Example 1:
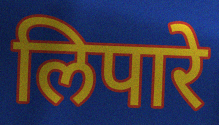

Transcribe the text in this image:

लिपारे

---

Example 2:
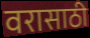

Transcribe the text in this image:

वरासाठी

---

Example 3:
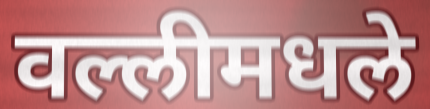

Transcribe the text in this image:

वल्लीमधले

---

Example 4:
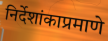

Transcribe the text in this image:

निर्देशांकाप्रमाणे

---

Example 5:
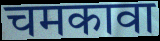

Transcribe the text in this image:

चमकावा